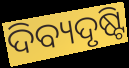
ଦିବ୍ୟଦୃଷ୍ଟି